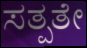
ಸತ್ಪತೇ